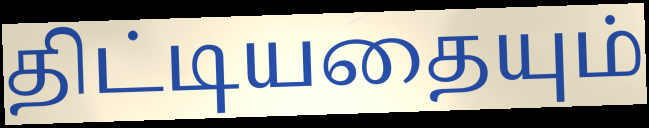
திட்டியதையும்